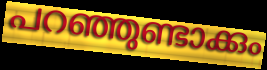
പറഞ്ഞുണ്ടാക്കും